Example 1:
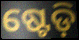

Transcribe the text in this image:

ଷ୍ଟେଡ଼ି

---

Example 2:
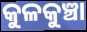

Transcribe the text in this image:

କୁଳକୁଞ୍ଚା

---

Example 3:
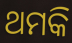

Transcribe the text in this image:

ଥମକି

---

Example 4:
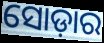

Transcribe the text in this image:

ସୋଡ଼ାର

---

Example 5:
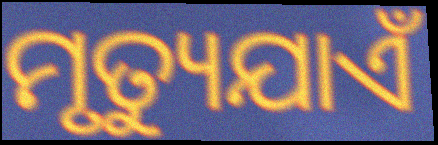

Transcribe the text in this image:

ମୃତ୍ୟୁଯାଏଁ